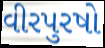
વીરપુરષો